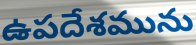
ఉపదేశమును